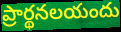
ప్రార్థనలయందు